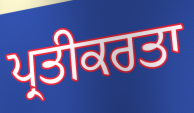
ਪ੍ਰਤੀਕਰਤਾ